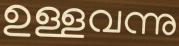
ഉള്ളവന്നു